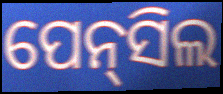
ପେନ୍‍ସିଲ